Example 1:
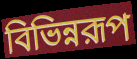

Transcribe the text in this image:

বিভিন্নরূপ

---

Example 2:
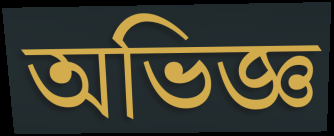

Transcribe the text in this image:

অভিজ্ঞ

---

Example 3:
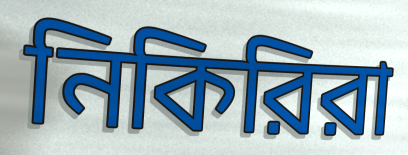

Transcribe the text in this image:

নিকিরিরা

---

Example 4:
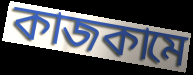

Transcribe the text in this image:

কাজকামে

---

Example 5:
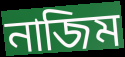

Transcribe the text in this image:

নাজিম